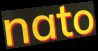
nato